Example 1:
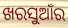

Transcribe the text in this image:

ଖରସୁଆଁର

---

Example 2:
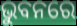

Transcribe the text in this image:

ଭୁବନରେ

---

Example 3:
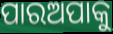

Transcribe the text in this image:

ପାରଅପାକୁ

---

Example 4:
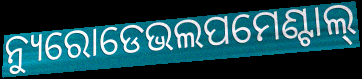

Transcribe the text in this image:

ନ୍ୟୁରୋଡେଭଲପମେଣ୍ଟାଲ୍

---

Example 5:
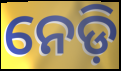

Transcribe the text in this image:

ନେଡ଼ି